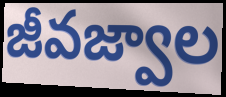
జీవజ్వాల